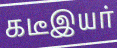
கடீஇயர்